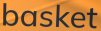
basket